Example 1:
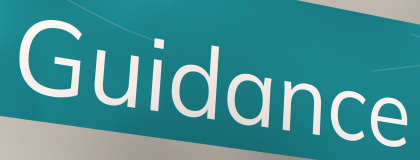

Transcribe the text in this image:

Guidance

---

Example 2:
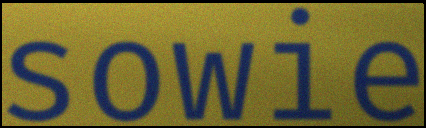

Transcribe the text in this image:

sowie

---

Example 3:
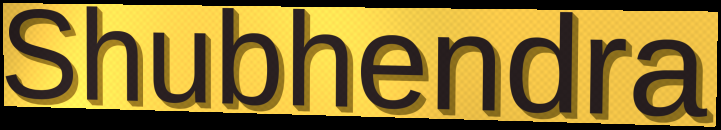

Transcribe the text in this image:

Shubhendra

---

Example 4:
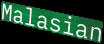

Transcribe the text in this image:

Malasian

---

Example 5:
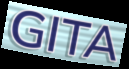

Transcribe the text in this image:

GITA